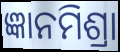
ଜ୍ଞାନମିଶ୍ରା